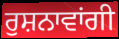
ਰੁਸ਼ਨਾਵਾਂਗੀ